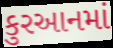
કુરઆનમાં